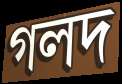
গলদ